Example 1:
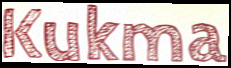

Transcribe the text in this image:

Kukma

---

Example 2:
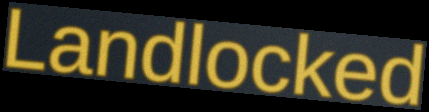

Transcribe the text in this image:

Landlocked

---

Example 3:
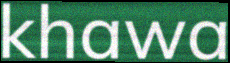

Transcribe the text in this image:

khawa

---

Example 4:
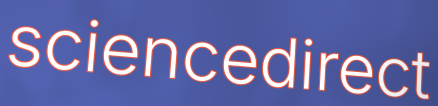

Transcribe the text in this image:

sciencedirect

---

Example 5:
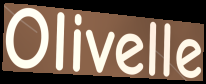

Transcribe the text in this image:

Olivelle